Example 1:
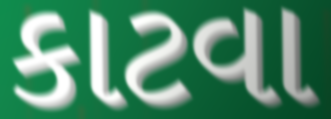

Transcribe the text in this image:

કાટવા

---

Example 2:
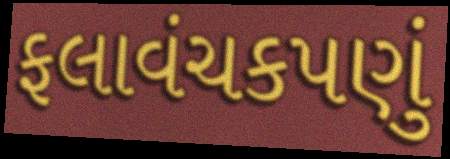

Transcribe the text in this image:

ફલાવંચકપણું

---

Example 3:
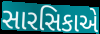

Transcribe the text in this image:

સારસિકાએ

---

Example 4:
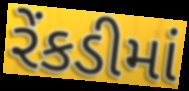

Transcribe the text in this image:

રેંકડીમાં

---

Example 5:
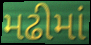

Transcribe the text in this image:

મઢીમાં